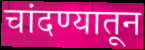
चांदण्यातून